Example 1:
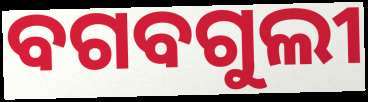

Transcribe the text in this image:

ବଗବଗୁଲୀ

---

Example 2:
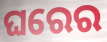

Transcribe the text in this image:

ଘରେର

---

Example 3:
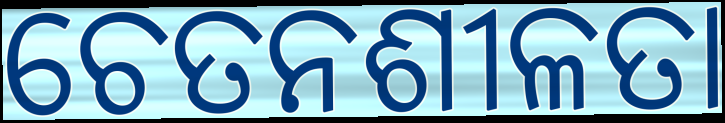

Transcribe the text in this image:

ଚେତନଶୀଳତା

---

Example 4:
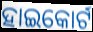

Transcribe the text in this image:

ହାଇକୋର୍ଟ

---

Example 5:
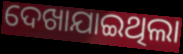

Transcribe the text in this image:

ଦେଖାଯାଇଥିଲା